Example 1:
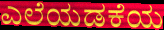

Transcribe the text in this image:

ಎಲೆಯಡಕೆಯ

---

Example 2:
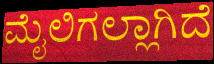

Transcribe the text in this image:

ಮೈಲಿಗಲ್ಲಾಗಿದೆ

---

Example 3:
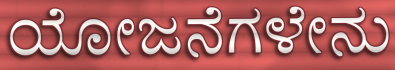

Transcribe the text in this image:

ಯೋಜನೆಗಳೇನು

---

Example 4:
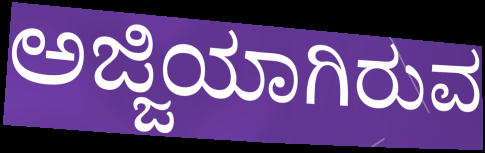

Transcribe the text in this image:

ಅಜ್ಜಿಯಾಗಿರುವ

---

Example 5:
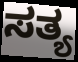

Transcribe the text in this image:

ಸತ್ಯ